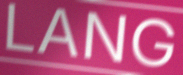
LANG